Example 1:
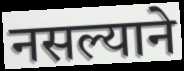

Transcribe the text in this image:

नसल्याने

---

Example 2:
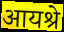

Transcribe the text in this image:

आयश्रे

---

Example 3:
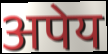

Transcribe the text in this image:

अपेय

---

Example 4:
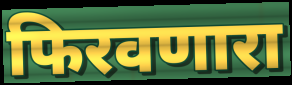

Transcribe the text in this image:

फिरवणारा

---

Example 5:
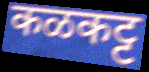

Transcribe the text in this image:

कळकट्ट